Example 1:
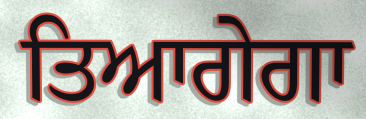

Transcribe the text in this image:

ਤਿਆਗੇਗਾ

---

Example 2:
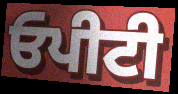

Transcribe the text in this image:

ਓਪੀਟੀ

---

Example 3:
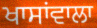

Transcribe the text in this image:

ਖਾਸਾਂਵਾਲਾ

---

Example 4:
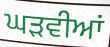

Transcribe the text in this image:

ਘੜਵੀਆਂ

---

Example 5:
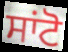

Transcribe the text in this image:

ਸਾਂਟੋ